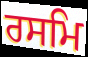
ਰਸਮਿ